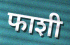
फाशी